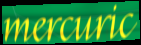
mercuric